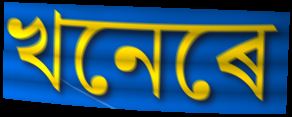
খনেৰে